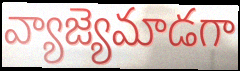
వ్యాజ్యెమాడగా